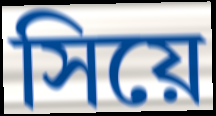
সিয়ে